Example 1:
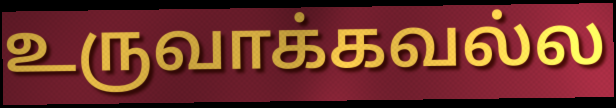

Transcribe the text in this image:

உருவாக்கவல்ல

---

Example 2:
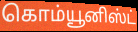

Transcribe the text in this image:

கொம்யூனிஸ்ட்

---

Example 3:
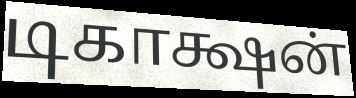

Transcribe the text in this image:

டிகாக்ஷன்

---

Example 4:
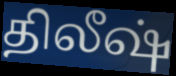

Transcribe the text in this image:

திலீஷ்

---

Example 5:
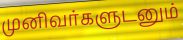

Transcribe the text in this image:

முனிவர்களுடனும்